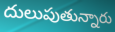
దులుపుతున్నారు